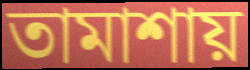
তামাশায়